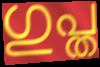
ഗുപ്ത